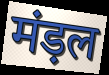
मंड़ल